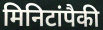
मिनिटांपैकी